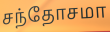
சந்தோசமா